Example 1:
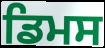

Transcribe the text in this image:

ਡਿਮਸ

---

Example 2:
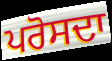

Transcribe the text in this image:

ਪਰੋਸਦਾ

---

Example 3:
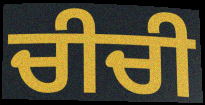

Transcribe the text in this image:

ਚੀਚੀ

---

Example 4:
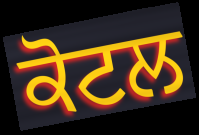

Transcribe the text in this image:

ਕੋਟਲ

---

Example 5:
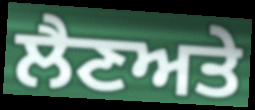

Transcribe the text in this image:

ਲੈਣਅਤੇ